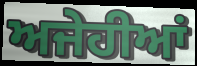
ਅਜੇਹੀਆਂ